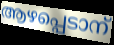
ആഴപ്പെടാന്